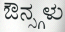
ಔನ್ಸ್ಗಳು